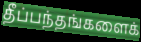
தீப்பந்தங்களைக்